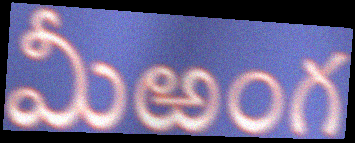
మీఱంగ